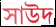
সাউদ